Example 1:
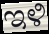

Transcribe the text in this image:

ಇಳಿ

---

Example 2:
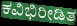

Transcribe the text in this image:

ಕವಿಭಿರೀಡಿತ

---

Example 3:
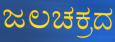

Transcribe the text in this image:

ಜಲಚಕ್ರದ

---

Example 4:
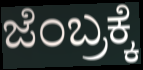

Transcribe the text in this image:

ಜೆಂಬ್ರಕ್ಕೆ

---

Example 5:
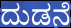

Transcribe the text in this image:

ದುಡನೆ